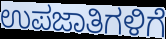
ಉಪಜಾತಿಗಳಿಗೆ